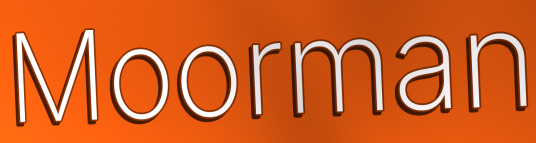
Moorman